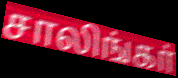
சாலிங்கர்